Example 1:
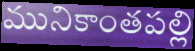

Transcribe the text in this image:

మునికాంతపల్లి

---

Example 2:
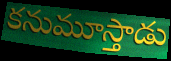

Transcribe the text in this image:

కనుమూస్తాడు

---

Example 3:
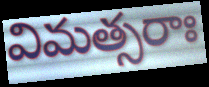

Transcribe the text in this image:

విమత్సరాః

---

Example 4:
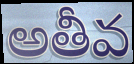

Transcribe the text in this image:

అతీవ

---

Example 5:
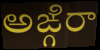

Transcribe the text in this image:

అఙ్గిరా